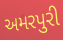
અમરપુરી